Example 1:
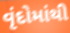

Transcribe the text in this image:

વૃંદોમાંથી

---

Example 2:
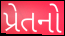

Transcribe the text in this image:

પ્રેતનો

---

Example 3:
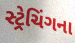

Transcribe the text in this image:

સ્ટ્રેચિંગના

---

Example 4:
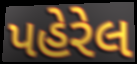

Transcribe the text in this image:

પહેરેલ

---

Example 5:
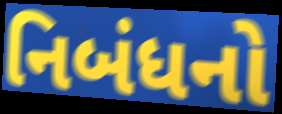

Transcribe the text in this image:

નિબંધનો